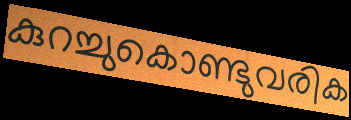
കുറച്ചുകൊണ്ടുവരിക